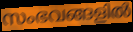
സംഭവങ്ങളിൽ